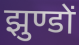
झुण्डों